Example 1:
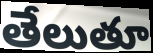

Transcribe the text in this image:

తేలుతూ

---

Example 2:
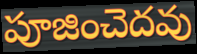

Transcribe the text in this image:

పూజించెదవు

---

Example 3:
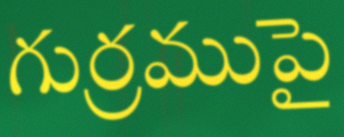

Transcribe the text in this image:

గుర్రముపై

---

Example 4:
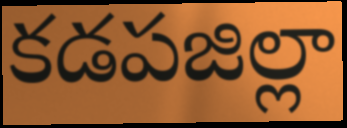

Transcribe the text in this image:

కడపజిల్లా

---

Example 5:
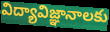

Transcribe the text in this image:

విద్యావిజ్ఞానాలకు